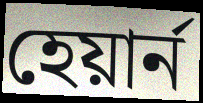
হেয়ার্ন